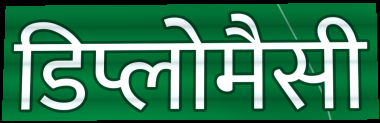
डिप्लोमैसी